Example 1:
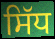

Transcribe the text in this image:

ਸਿੱਧ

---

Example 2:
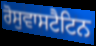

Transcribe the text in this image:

ਰੋਸੁਵਾਸਟੈਟਿਨ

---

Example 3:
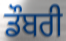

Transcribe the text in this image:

ਡੌਬਰੀ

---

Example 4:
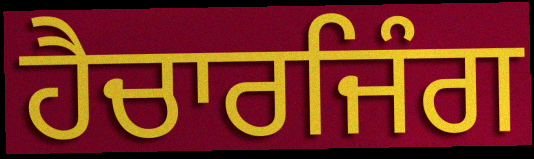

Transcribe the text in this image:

ਹੈਚਾਰਜਿੰਗ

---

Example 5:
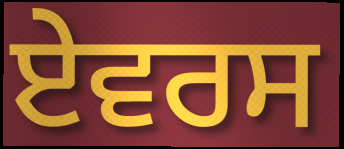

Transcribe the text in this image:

ਏਵਰਸ